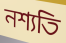
নশ্যতি